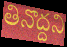
తినొద్దని